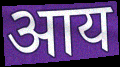
आय